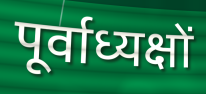
पूर्वाध्यक्षों